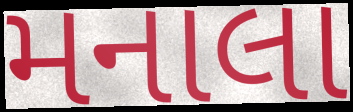
મનાલા